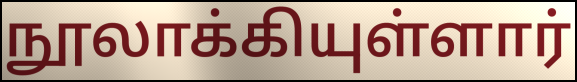
நூலாக்கியுள்ளார்